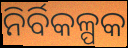
ନିର୍ବିକଳ୍ପକ